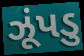
ઝૂંપડુ